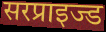
सरप्राइज्ड